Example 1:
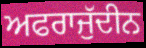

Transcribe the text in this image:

ਅਫਰਾਜੁੱਦੀਨ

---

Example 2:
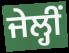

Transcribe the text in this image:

ਜੇਲ੍ਹੀਂ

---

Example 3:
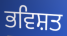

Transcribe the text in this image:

ਭਵਿਸ਼ਤ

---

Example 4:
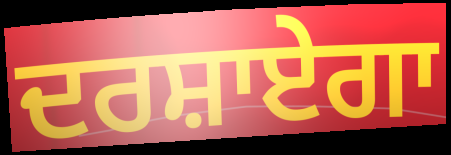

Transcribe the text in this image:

ਦਰਸ਼ਾਏਗਾ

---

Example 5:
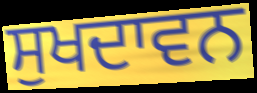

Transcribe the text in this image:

ਸੁਖਦਾਵਨ